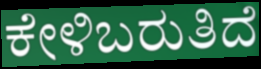
ಕೇಳಿಬರುತಿದೆ